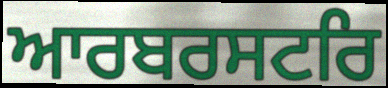
ਆਰਬਰਸਟਰਿ